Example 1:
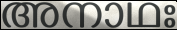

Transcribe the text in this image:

അനാഥഃ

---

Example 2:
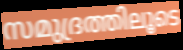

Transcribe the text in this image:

സമുദ്രത്തിലൂടെ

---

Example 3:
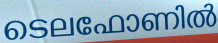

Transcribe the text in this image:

ടെലഫോണിൽ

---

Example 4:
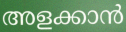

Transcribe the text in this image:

അളക്കാൻ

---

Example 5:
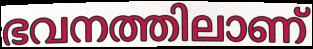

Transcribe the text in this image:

ഭവനത്തിലാണ്